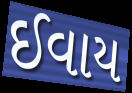
ઈવાય